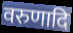
वरुणादि